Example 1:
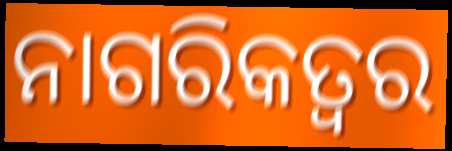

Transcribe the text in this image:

ନାଗରିକତ୍ଵର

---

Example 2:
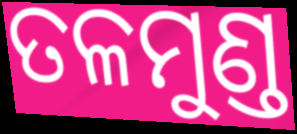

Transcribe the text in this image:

ତଳମୁଣ୍ଡ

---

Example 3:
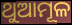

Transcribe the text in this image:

ଥୁଆମୂଳ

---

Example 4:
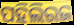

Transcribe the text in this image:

ପହିଲିରଜ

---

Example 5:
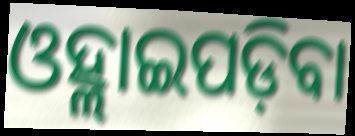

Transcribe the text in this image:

ଓହ୍ଲାଇପଡ଼ିବା